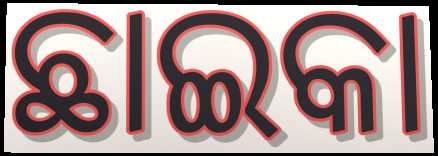
ଛାଇକା